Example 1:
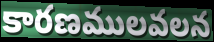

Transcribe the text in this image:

కారణములవలన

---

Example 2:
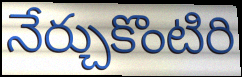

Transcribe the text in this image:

నేర్చుకొంటిరి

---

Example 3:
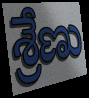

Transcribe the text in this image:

శ్రేణు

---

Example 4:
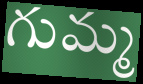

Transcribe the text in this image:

గుమ్మ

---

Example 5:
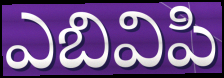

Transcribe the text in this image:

ఎబివిపి